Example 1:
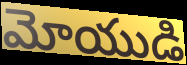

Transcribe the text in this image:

మోయుడి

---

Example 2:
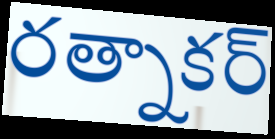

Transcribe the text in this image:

రత్నాకర్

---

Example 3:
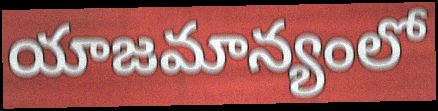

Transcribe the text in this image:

యాజమాన్యంలో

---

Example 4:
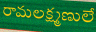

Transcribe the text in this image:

రామలక్ష్మణులే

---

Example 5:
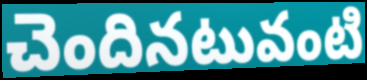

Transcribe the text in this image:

చెందినటువంటి